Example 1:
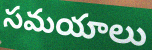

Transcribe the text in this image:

సమయాలు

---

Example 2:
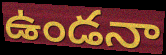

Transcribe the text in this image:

ఉండనా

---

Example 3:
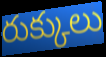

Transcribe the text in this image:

రుక్కులు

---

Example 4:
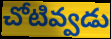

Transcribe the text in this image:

చోటివ్వడు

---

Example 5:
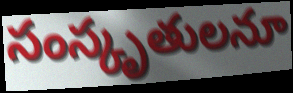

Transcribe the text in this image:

సంస్కృతులనూ